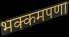
भक्कमपणा